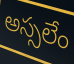
అస్సలేం